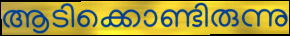
ആടിക്കൊണ്ടിരുന്നു